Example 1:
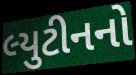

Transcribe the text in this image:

લ્યુટીનનો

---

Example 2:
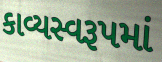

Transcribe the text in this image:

કાવ્યસ્વરૂપમાં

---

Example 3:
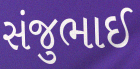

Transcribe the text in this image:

સંજુભાઈ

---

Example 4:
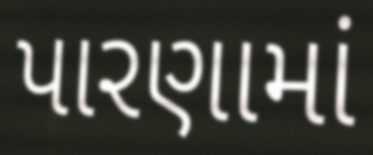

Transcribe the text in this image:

પારણામાં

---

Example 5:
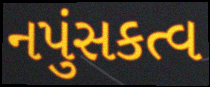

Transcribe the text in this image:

નપુંસકત્વ